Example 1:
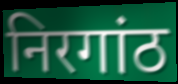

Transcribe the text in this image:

निरगांठ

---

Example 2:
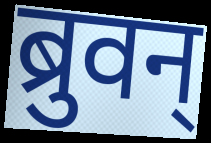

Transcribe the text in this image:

ब्रुवन्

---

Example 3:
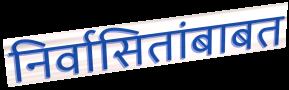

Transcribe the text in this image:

निर्वासितांबाबत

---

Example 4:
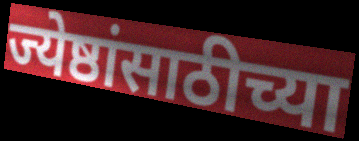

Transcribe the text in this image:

ज्येष्ठांसाठीच्या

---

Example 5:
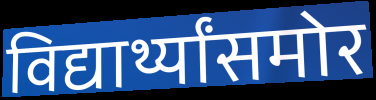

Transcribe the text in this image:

विद्यार्थ्यांसमोर